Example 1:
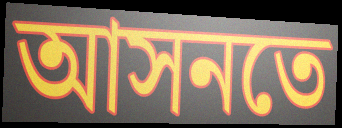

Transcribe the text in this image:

আসনতে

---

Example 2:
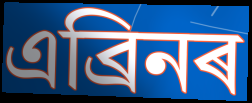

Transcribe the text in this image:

এব্ৰিনৰ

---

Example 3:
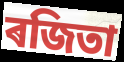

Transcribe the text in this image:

ৰজিতা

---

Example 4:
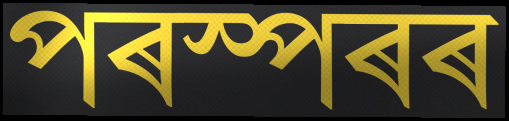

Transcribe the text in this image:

পৰস্পৰৰ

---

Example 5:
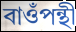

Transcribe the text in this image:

বাওঁপন্থী